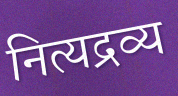
नित्यद्रव्य